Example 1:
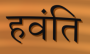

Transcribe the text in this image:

हवंति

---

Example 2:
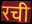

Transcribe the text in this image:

रची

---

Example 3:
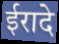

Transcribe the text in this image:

ईरादे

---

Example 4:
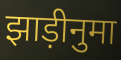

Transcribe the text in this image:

झाड़ीनुमा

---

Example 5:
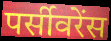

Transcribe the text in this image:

पर्सीवरेंस